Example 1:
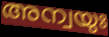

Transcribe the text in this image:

അന്വയുഃ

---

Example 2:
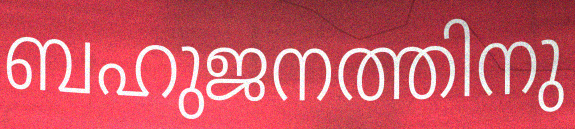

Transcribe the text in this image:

ബഹുജനത്തിനു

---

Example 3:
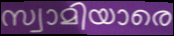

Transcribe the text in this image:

സ്വാമിയാരെ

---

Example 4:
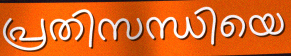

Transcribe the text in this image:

പ്രതിസന്ധിയെ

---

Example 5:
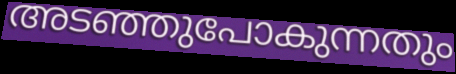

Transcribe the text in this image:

അടഞ്ഞുപോകുന്നതും